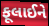
ફૂલાઈને